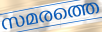
സമരത്തെ